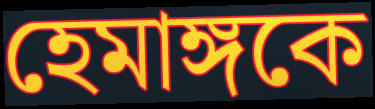
হেমাঙ্গকে